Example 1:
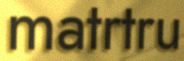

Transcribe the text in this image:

matrtru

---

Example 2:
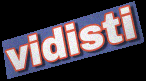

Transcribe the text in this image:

vidisti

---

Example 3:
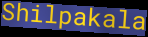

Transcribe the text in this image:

Shilpakala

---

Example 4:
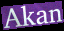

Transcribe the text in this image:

Akan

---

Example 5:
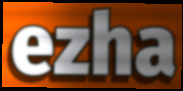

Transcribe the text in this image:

ezha